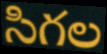
సిగల